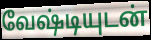
வேஷ்டியுடன்